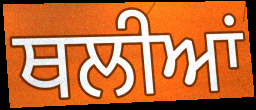
ਥਲੀਆਂ